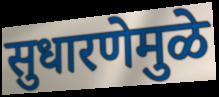
सुधारणेमुळे